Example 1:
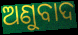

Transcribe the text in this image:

ଅଣୁବାଦ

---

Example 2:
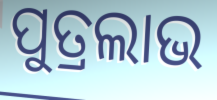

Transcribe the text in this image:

ପୁତ୍ରଲାଭ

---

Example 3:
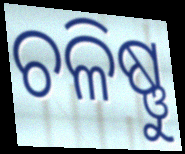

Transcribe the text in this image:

ଚଳିଷ୍ଣୁ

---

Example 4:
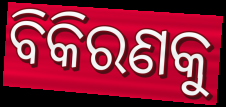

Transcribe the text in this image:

ବିକିରଣକୁ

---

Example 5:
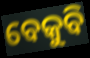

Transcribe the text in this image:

ବେକୁବି